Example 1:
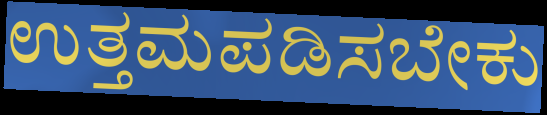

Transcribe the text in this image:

ಉತ್ತಮಪಡಿಸಬೇಕು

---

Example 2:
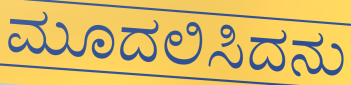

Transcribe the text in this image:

ಮೂದಲಿಸಿದನು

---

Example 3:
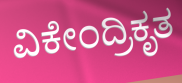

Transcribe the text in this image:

ವಿಕೇಂದ್ರಿಕೃತ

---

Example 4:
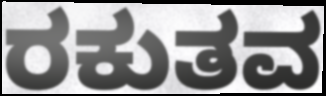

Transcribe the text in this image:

ರಕುತವ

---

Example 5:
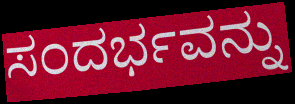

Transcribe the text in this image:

ಸಂದರ್ಭವನ್ನು